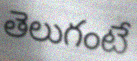
తెలుగంటే